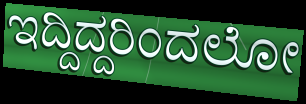
ಇದ್ದಿದ್ದರಿಂದಲೋ